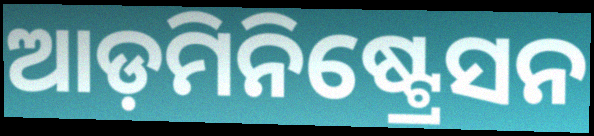
ଆଡ଼ମିନିଷ୍ଟ୍ରେସନ